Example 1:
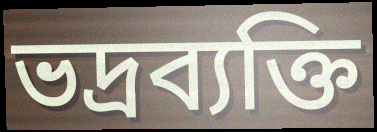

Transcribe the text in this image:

ভদ্রব্যক্তি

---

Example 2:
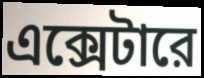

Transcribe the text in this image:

এক্সেটারে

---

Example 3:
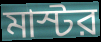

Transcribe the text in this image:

মাস্টর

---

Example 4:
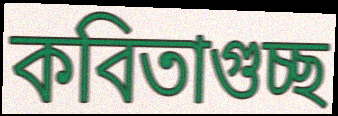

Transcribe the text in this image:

কবিতাগুচ্ছ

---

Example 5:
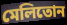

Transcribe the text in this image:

মেলিতোন